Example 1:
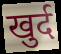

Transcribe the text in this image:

खुर्द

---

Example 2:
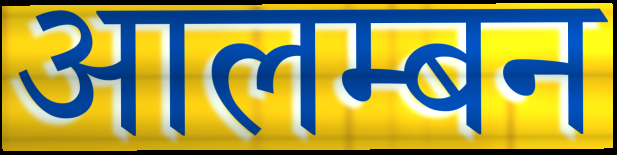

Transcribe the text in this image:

आलम्बन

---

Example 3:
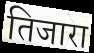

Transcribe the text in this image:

तिजारा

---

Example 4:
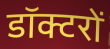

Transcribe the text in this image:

डॉक्टरों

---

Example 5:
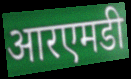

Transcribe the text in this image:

आरएमडी